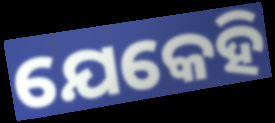
ଯେକେହି